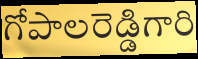
గోపాలరెడ్డిగారి